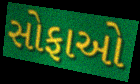
સોફાઓ